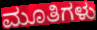
ಮೂತಿಗಳು